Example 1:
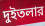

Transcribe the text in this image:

দুইতলার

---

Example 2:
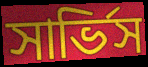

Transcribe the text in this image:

সার্ভিস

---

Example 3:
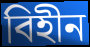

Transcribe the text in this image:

বিহীন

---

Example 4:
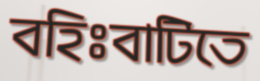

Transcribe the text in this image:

বহিঃবাটিতে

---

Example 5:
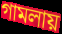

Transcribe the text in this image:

গামলায়